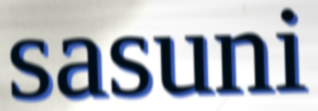
sasuni